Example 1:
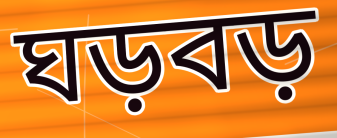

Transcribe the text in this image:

ঘড়বড়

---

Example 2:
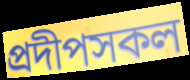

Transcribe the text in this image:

প্রদীপসকল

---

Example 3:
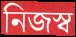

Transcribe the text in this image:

নিজস্ব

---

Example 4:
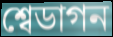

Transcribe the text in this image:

শ্বেডাগন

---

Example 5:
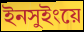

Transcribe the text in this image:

ইনসুইংয়ে